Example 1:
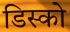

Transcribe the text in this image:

डिस्को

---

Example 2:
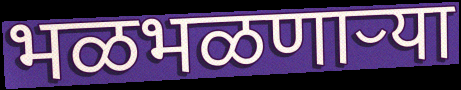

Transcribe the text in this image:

भळभळणाऱ्या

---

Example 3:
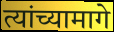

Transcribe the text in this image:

त्यांच्यामागे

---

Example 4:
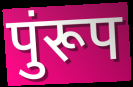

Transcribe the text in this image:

पुंरूप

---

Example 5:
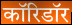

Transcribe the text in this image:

कॉरिडॉर